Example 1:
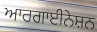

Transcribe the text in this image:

ਆਰਗਾਈਨੇਸ਼ਨ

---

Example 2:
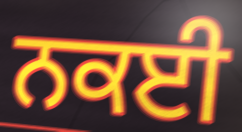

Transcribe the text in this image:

ਨਕਈ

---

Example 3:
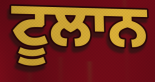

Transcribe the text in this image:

ਟੂਲਾਨ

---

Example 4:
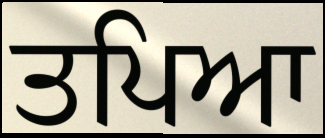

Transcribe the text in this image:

ਤਪਿਆ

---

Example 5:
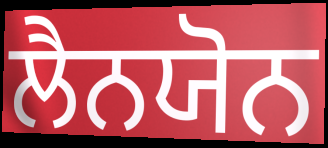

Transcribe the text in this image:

ਲੈਨਯੋਨ